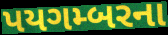
પયગમ્બરના